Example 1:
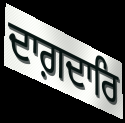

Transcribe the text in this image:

ਦਾਗ਼ਦਾਰਿ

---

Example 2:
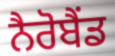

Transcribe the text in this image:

ਨੈਰੋਬੈਂਡ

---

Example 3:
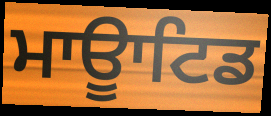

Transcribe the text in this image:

ਮਾਊਾਟਿਡ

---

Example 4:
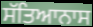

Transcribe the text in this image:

ਸੱਤਿਆਨਾਸ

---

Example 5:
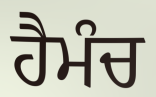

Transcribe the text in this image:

ਹੈਮੰਚ